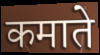
कमाते